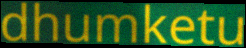
dhumketu